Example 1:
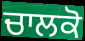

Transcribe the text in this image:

ਚਾਲਕੋ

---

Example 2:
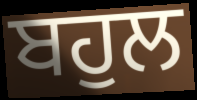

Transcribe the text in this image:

ਬਹੁਲ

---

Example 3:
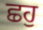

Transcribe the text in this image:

ਛਹੁ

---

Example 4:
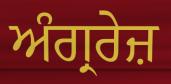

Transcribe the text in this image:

ਅੰਗ੍ਰਰੇਜ਼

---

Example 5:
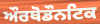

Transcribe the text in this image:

ਔਰਥੋਡੌਨਟਿਕ